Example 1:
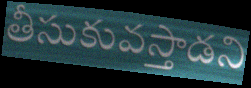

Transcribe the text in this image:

తీసుకువస్తాడని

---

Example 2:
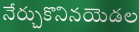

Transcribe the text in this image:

నేర్చుకొనినయెడల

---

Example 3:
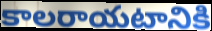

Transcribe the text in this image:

కాలరాయటానికి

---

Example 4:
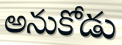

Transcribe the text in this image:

అనుకోడు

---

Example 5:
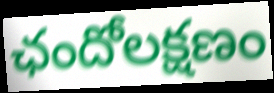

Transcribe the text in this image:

ఛందోలక్షణం